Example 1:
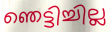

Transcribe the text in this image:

ഞെട്ടിച്ചില്ല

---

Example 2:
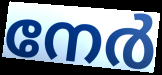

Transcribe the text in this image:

നേർ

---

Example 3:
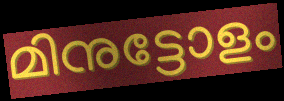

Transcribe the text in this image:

മിനുട്ടോളം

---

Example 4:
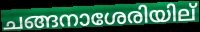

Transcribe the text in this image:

ചങ്ങനാശേരിയില്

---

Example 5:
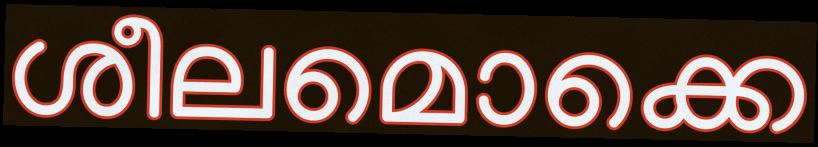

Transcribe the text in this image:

ശീലമൊക്കെ